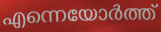
എന്നെയോർത്ത്